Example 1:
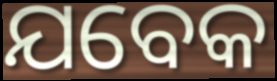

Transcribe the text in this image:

ଯବେକ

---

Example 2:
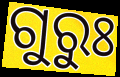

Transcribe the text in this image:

ଗୁରୁଃ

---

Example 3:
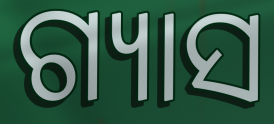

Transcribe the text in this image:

ଗ୍ୟାସ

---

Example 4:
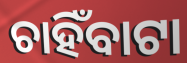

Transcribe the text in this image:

ଚାହିଁବାଟା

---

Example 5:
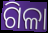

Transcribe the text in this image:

ଗିଳା